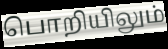
பொறியிலும்